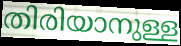
തിരിയാനുള്ള